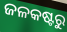
ଜଳକଷ୍ଟରୁ